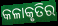
କଳାକୃତିର